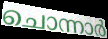
ചൊന്നാർ